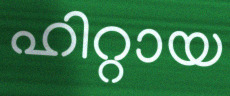
ഹിറ്റായ